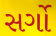
સર્ગો